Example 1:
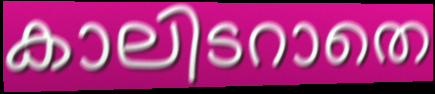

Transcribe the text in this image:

കാലിടറാതെ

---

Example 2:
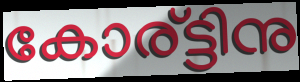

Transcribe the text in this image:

കോര്ട്ടിനു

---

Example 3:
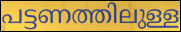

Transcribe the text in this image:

പട്ടണത്തിലുള്ള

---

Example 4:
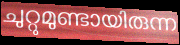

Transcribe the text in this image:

ചുറ്റുമുണ്ടായിരുന്ന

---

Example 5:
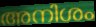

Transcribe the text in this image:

അനിശം